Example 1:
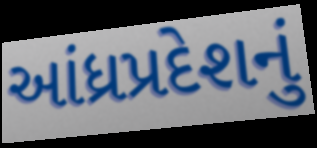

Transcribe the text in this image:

આંધ્રપ્રદેશનું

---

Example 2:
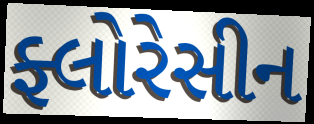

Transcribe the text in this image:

ફ્લોરેસીન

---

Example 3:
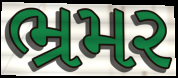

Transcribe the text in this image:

ભ્રમર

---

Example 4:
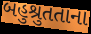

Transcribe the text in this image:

બહુશ્રુતતાના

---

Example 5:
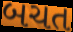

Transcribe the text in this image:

બચત